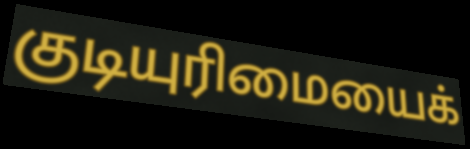
குடியுரிமையைக்